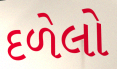
દળેલો